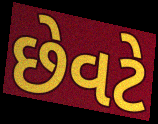
છેવટે